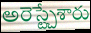
అరెస్ట్చేశారు